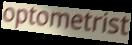
optometrist